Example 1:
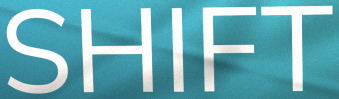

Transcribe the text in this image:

SHIFT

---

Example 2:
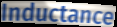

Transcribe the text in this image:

Inductance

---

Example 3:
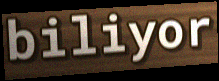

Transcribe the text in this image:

biliyor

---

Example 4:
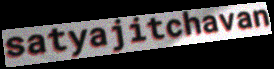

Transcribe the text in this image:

satyajitchavan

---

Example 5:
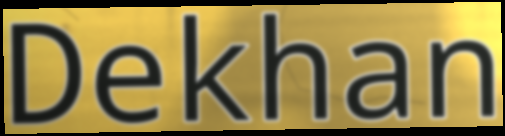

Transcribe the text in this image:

Dekhan